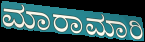
ಮಾರಾಮಾರಿ